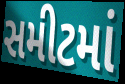
સમીટમાં